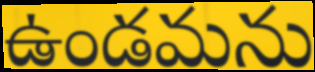
ఉండమను